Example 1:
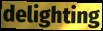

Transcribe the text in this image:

delighting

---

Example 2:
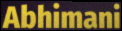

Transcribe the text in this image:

Abhimani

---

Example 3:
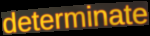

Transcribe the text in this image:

determinate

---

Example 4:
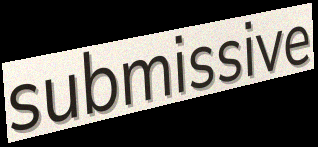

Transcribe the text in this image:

submissive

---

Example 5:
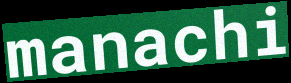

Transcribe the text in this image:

manachi